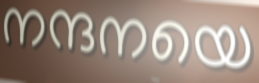
നന്ദനയെ